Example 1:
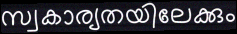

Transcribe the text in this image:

സ്വകാര്യതയിലേക്കും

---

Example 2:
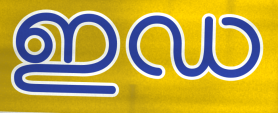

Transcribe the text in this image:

ഇഡ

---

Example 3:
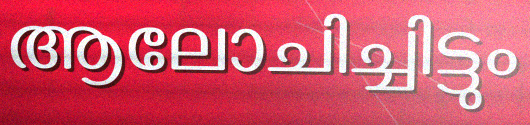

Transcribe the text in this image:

ആലോചിച്ചിട്ടും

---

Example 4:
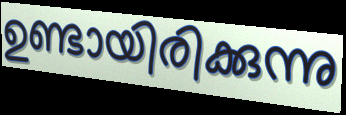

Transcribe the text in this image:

ഉണ്ടായിരിക്കുന്നു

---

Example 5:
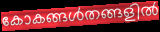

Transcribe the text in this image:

കോകങ്ങൾതങ്ങളിൽ